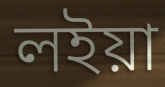
লইয়া